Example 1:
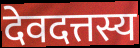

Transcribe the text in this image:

देवदत्तस्य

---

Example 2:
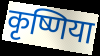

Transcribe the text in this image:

कृष्णिया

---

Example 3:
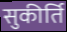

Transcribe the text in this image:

सुकीर्ति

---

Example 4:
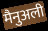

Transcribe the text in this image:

मैनुअली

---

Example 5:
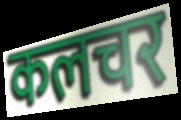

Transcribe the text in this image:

कलचर